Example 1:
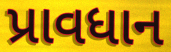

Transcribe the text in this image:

પ્રાવધાન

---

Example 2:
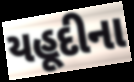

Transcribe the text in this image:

યહૂદીના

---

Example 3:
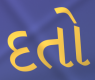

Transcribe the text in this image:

દતો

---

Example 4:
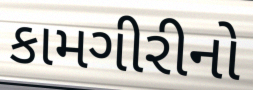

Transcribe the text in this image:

કામગીરીનો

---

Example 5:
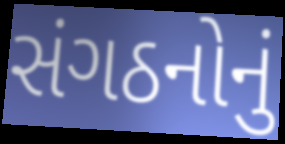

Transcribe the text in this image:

સંગઠનોનું